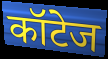
कॉटेज